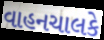
વાહનચાલકે